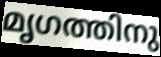
മൃഗത്തിനു